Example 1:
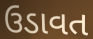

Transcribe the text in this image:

ઉડાવત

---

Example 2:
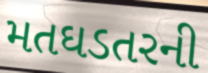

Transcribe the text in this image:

મતઘડતરની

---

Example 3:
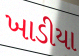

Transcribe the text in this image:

ખાડીયા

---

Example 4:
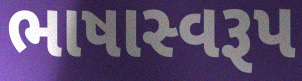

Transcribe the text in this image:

ભાષાસ્વરૂપ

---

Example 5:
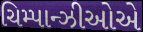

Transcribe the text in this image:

ચિમ્પાન્ઝીઓએ